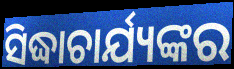
ସିଦ୍ଧାଚାର୍ଯ୍ୟଙ୍କର